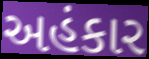
અહંકાર